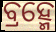
ବ୍ରହ୍ମେ